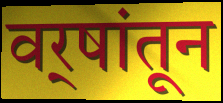
वर्षांतून